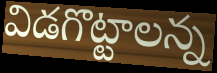
విడగొట్టాలన్న